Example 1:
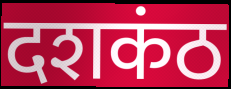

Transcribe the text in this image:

दशकंठ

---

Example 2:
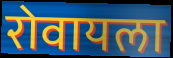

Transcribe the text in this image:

रोवायला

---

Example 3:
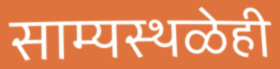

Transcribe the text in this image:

साम्यस्थळेही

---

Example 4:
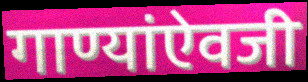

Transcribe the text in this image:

गाण्यांऐवजी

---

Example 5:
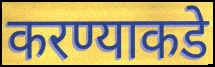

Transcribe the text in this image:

करण्याकडे